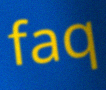
faq